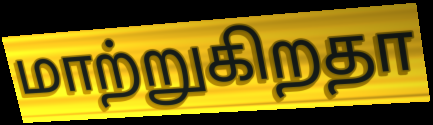
மாற்றுகிறதா